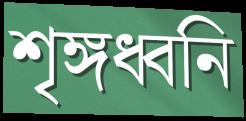
শৃঙ্গধ্বনি